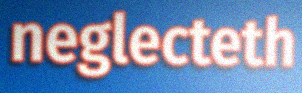
neglecteth